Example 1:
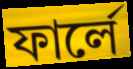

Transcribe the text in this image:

ফার্লে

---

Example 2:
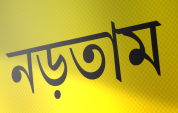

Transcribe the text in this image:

নড়তাম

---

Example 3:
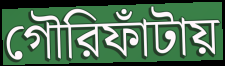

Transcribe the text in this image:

গৌরিফাঁটায়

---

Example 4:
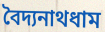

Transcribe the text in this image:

বৈদ্যনাথধাম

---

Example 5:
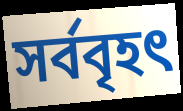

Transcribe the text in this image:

সর্ববৃহৎ